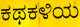
ಕಥಕಳಿಯ